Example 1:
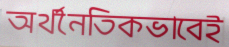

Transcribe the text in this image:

অর্থনৈতিকভাবেই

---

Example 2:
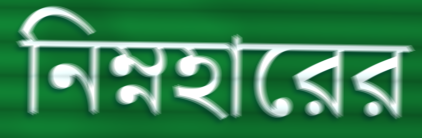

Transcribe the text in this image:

নিম্নহারের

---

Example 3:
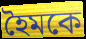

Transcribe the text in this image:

হৈমকে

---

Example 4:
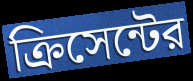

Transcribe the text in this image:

ক্রিসেন্টের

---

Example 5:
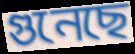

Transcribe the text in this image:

গুনেছে